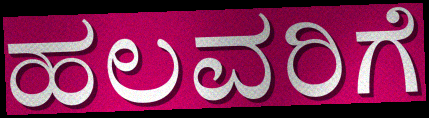
ಹಲವರಿಗೆ